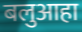
बलुआहा